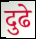
दुढे